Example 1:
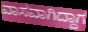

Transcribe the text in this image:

ವಾಸವಾಗಿದ್ದಾಗ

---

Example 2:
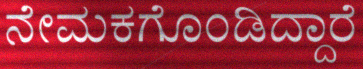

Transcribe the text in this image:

ನೇಮಕಗೊಂಡಿದ್ದಾರೆ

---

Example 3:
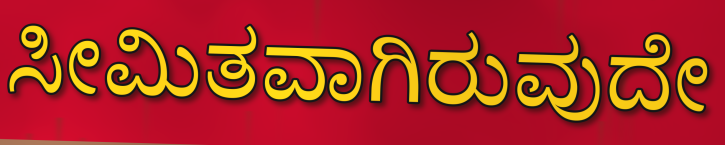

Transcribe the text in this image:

ಸೀಮಿತವಾಗಿರುವುದೇ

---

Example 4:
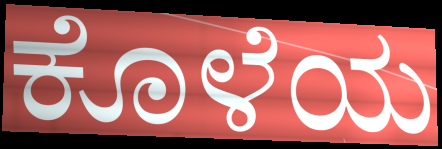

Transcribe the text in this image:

ಕೊಳೆಯ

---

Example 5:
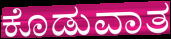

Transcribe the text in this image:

ಕೊಡುವಾತ